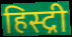
हिस्द्री